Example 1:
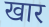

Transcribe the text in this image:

खार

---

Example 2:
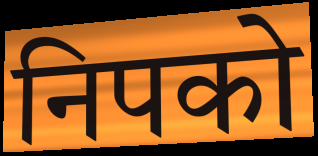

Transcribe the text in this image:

निपको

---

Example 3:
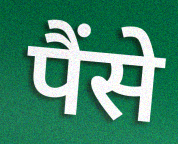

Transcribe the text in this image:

पैंसे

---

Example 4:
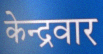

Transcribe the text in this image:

केन्द्रवार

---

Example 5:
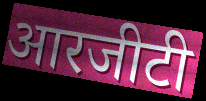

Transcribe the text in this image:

आरजीटी